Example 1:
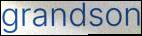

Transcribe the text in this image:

grandson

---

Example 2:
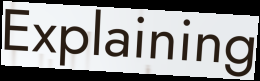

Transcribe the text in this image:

Explaining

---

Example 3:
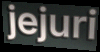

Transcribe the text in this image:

jejuri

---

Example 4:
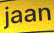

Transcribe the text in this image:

jaan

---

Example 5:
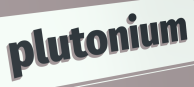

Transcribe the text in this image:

plutonium